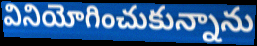
వినియోగించుకున్నాను